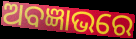
ଅବଜ୍ଞାଭରେ